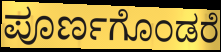
ಪೂರ್ಣಗೊಂಡರೆ